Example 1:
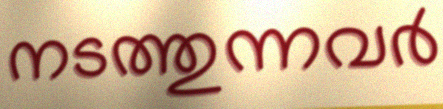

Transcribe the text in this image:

നടത്തുന്നവർ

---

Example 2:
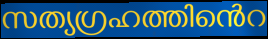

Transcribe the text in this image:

സത്യഗ്രഹത്തിൻെറ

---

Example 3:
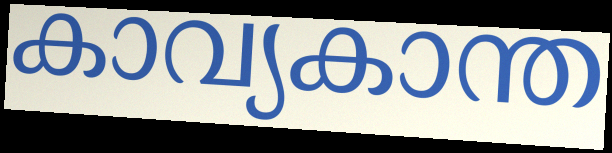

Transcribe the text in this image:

കാവ്യകാന്ത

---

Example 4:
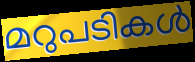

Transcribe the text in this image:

മറുപടികൾ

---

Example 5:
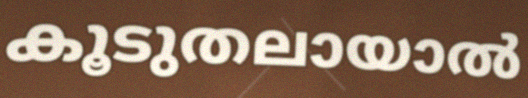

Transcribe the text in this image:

കൂടുതലായാൽ